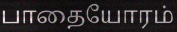
பாதையோரம்